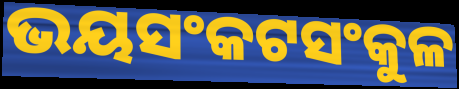
ଭୟସଂକଟସଂକୁଳ